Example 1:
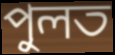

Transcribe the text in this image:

পুলত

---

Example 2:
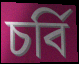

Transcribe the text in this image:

চৰ্বি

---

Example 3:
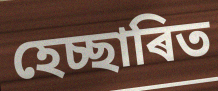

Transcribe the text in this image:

হেচ্ছাৰিত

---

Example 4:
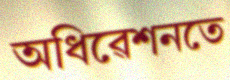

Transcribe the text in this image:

অধিৱেশনতে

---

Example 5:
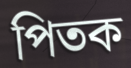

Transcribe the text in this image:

পিতক